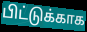
பிட்டுக்காக